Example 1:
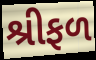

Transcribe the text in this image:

શ્રીફળ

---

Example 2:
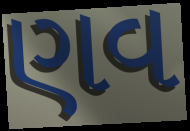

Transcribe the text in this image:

ણવ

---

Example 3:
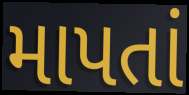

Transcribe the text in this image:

માપતાં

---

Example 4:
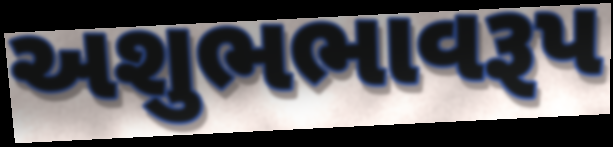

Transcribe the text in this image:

અશુભભાવરૂપ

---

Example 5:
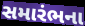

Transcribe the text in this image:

સમારંભના